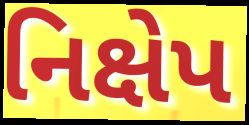
નિક્ષેપ